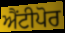
ਐਂਟੀਪੋਰ